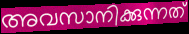
അവസാനിക്കുന്നത്